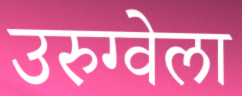
उरुग्वेला